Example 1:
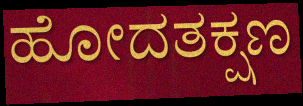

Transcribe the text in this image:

ಹೋದತಕ್ಷಣ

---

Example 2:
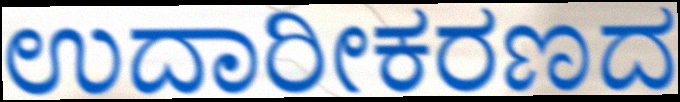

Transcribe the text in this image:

ಉದಾರೀಕರಣದ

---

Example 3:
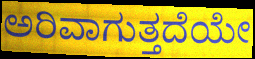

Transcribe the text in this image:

ಅರಿವಾಗುತ್ತದೆಯೇ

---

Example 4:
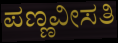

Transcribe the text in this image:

ಪಣ್ಣವೀಸತಿ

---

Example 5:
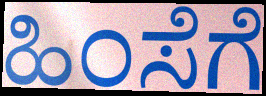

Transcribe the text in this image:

ಹಿಂಸೆಗೆ